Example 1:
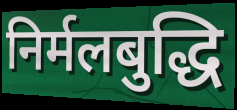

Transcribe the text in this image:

निर्मलबुद्धि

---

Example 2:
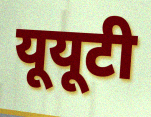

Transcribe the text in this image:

यूयूटी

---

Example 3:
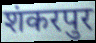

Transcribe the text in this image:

शंकरपुर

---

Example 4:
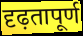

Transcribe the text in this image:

दृढ़तापूर्ण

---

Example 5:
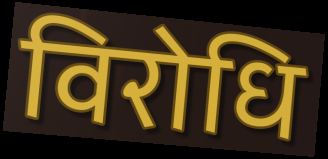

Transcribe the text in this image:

विरोधि